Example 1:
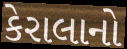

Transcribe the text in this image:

કેરાલાનો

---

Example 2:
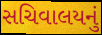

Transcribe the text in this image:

સચિવાલયનું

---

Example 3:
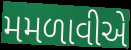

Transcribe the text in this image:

મમળાવીએ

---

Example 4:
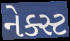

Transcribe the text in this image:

નેક્સ્ટ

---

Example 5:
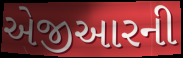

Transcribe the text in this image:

એજીઆરની